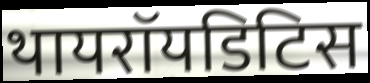
थायरॉयडिटिस